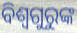
ବିଶ୍ୱଗୁରୁଙ୍କ